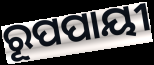
ରୂପପାୟୀ